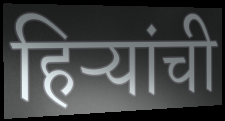
हिऱ्यांची